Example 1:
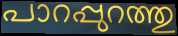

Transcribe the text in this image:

പാറപ്പുറത്തു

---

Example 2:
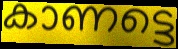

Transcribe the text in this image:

കാണട്ടെ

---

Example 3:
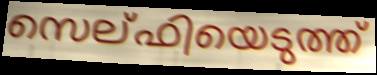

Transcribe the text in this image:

സെല്ഫിയെടുത്ത്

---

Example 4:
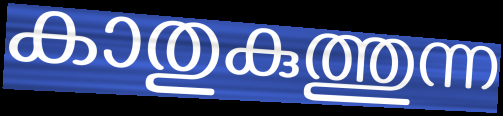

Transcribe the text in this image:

കാതുകുത്തുന്ന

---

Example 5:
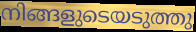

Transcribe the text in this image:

നിങ്ങളുടെയടുത്തു